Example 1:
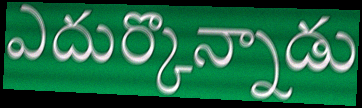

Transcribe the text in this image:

ఎదుర్కొన్నాడు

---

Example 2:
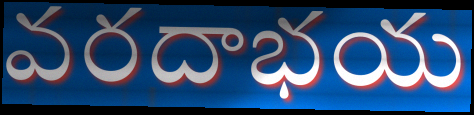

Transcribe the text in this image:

వరదాభయ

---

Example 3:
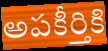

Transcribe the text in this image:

అపకీర్తికి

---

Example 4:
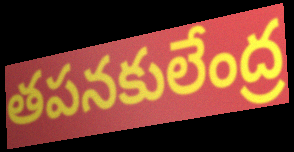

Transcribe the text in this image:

తపనకులేంద్ర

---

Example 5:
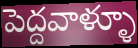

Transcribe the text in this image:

పెద్దవాళ్ళూ